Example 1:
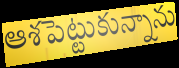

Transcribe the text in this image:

ఆశపెట్టుకున్నాను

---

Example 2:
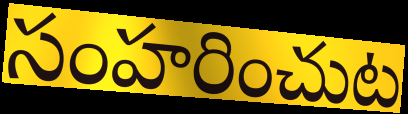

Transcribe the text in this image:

సంహరించుట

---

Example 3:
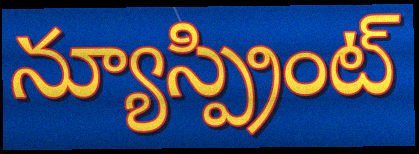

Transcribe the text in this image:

న్యూస్ప్రింట్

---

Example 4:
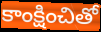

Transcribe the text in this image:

కాంక్షించితో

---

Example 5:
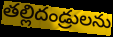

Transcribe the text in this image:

తల్లిదండ్రులను